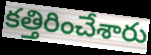
కత్తిరించేశారు